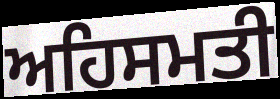
ਅਹਿਸਮਤੀ